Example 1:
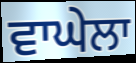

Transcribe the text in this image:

ਵਾਘੇਲਾ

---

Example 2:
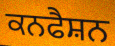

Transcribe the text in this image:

ਕਨਫੈਸ਼ਨ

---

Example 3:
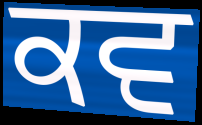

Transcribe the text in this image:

ਕਵ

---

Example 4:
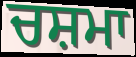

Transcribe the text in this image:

ਚਸ਼ਮਾ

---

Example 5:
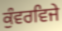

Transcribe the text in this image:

ਕੁੰਵਰਵਿਜੇ